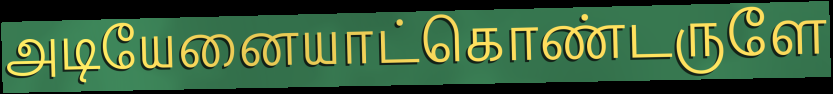
அடியேனையாட்கொண்டருளே